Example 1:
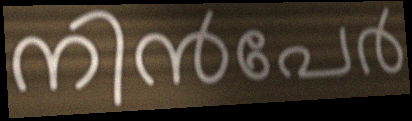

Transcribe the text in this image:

നിൻപേർ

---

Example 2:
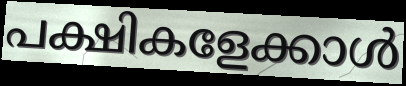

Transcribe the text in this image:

പക്ഷികളേക്കാൾ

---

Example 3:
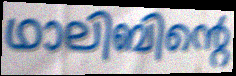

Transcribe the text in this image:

ഥാലിബിന്റെ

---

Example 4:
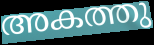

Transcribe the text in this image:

അകത്തു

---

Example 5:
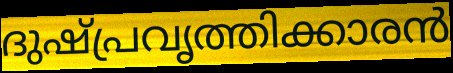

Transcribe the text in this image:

ദുഷ്പ്രവൃത്തിക്കാരൻ